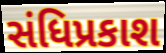
સંધિપ્રકાશ